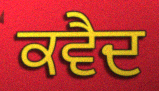
ਕਵੈਦ